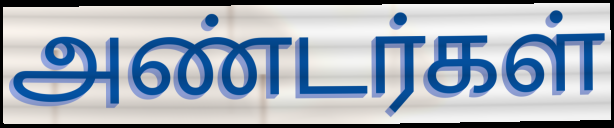
அண்டர்கள்